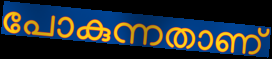
പോകുന്നതാണ്